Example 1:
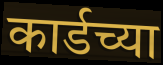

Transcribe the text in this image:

कार्डच्या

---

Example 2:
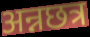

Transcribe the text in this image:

अन्नछत्र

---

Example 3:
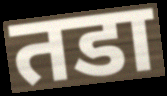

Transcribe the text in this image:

तडा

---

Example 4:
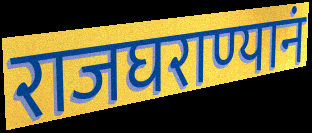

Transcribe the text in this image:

राजघराण्यानं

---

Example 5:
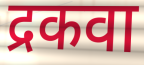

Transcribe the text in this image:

द्रकवा